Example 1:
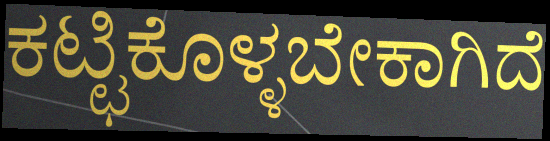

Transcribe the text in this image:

ಕಟ್ಟಿಕೊಳ್ಳಬೇಕಾಗಿದೆ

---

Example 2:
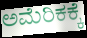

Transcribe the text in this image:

ಅಮೆರಿಕಕ್ಕೆ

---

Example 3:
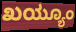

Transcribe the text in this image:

ಖಯ್ಯೂಂ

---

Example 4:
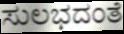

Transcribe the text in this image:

ಸುಲಭದಂತೆ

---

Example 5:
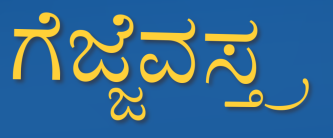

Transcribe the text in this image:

ಗೆಜ್ಜೆವಸ್ತ್ರ